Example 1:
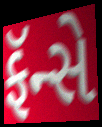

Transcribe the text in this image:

ફૅન્સે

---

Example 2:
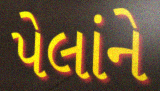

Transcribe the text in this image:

પેલાંને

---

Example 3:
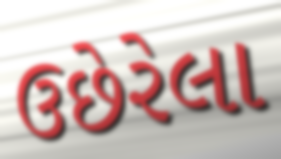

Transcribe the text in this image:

ઉછેરેલા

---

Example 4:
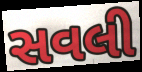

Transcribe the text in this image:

સવલી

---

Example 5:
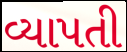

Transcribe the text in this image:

વ્યાપતી